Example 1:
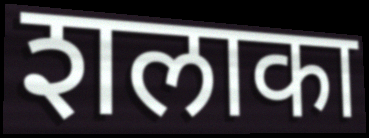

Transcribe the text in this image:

शलाका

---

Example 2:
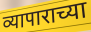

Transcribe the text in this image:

व्यापाराच्या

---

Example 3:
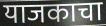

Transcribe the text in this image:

याजकाचा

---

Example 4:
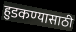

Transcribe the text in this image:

हुडकण्यासाठी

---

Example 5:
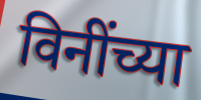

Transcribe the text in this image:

विनींच्या